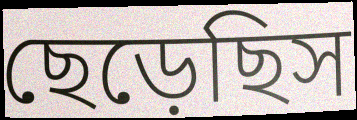
ছেড়েছিস